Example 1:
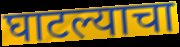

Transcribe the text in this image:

घाटल्याचा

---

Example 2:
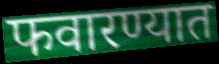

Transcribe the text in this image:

फवारण्यात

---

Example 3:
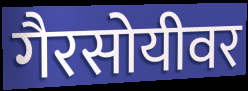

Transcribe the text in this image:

गैरसोयीवर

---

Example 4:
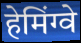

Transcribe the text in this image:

हेमिंग्वे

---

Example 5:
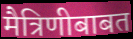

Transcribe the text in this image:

मैत्रिणीबाबत